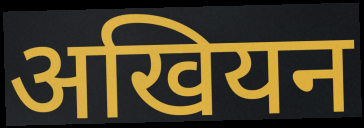
अखियन